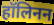
हॉलिनन